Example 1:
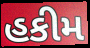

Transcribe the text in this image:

હકીમ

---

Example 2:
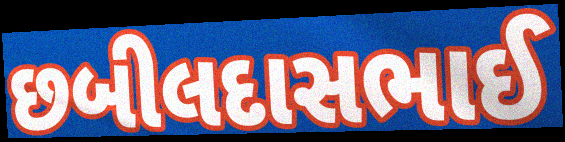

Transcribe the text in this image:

છબીલદાસભાઈ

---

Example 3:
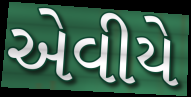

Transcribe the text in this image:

એવીયે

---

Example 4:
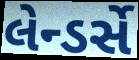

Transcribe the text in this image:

લેન્ડર્સે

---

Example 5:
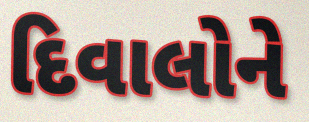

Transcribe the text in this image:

દિવાલોને